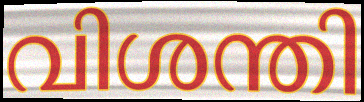
വിശന്തി